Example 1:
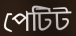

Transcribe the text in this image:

পেটিট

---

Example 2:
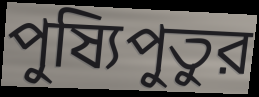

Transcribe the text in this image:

পুষ্যিপুতুর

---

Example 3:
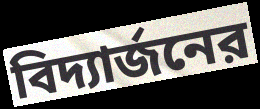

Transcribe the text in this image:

বিদ্যার্জনের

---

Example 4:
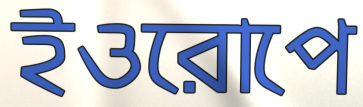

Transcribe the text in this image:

ইওরোপে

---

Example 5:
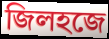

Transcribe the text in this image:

জিলহজে